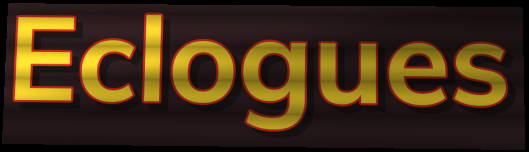
Eclogues